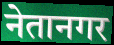
नेतानगर